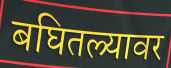
बघितल्यावर